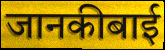
जानकीबाई